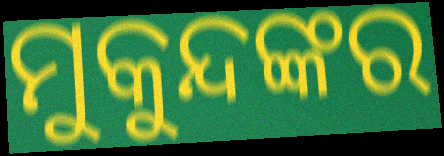
ମୁକୁନ୍ଦଙ୍କର